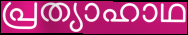
പ്രത്യാഹാഥ